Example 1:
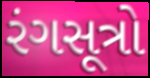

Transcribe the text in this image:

રંગસૂત્રો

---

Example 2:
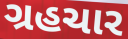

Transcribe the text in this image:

ગ્રહચાર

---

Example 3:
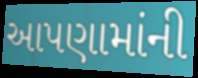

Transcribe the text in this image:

આપણામાંની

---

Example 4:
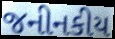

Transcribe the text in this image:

જનીનકીય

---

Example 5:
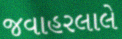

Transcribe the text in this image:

જવાહરલાલે